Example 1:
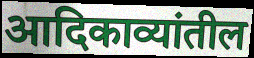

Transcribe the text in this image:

आदिकाव्यांतील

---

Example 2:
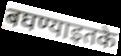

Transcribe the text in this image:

बघण्याइतके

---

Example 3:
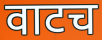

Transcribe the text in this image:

वाटच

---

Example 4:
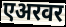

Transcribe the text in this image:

एअरवर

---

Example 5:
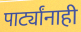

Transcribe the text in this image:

पार्ट्यांनाही